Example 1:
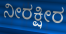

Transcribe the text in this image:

ನೀರಕ್ಷೀರ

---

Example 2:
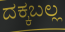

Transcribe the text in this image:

ದಕ್ಕಬಲ್ಲ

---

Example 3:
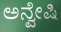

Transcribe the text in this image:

ಅನ್ವೇಷಿ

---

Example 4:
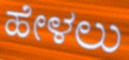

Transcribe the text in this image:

ಹೇಳಲು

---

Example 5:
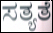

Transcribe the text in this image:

ಸತ್ಯತೆ